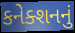
કનેક્શનનું